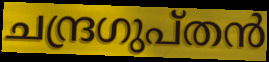
ചന്ദ്രഗുപ്തൻ